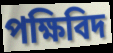
পক্ষিবিদ